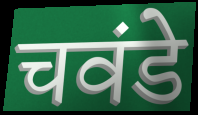
चवंडे